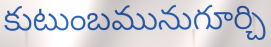
కుటుంబమునుగూర్చి